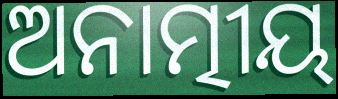
ଅନାତ୍ମୀୟ